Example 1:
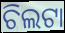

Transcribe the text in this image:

ଚିଲଟା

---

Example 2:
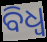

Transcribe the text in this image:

ବିଧ୍ଵ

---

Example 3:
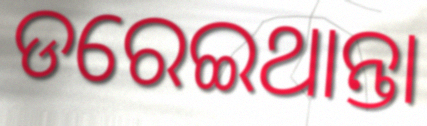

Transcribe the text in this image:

ଡରେଇଥାନ୍ତା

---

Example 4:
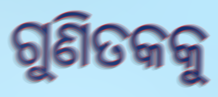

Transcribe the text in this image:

ଗୁଣିତକକୁ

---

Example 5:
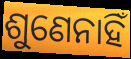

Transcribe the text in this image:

ଶୁଣେନାହିଁ